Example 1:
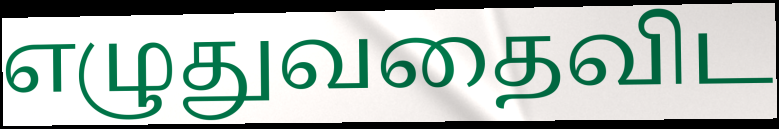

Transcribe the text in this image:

எழுதுவதைவிட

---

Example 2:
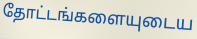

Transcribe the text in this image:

தோட்டங்களையுடைய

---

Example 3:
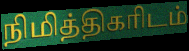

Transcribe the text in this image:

நிமித்திகரிடம்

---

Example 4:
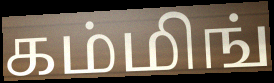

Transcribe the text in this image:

கம்மிங்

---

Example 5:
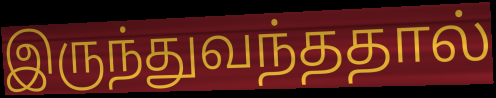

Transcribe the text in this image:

இருந்துவந்ததால்